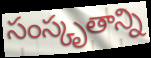
సంస్కృతాన్ని